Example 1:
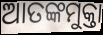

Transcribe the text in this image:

ଆତଙ୍କମୁକ୍ତା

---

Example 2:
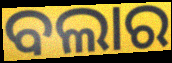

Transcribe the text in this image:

ବଲାର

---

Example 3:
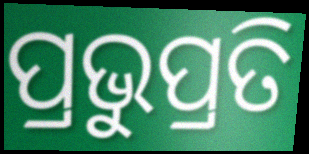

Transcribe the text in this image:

ପ୍ରଭୁପ୍ରତି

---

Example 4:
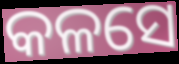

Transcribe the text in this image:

କଳସେ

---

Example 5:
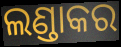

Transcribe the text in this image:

ଲଣ୍ଡାକର